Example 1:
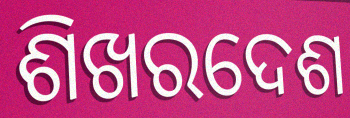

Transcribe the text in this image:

ଶିଖରଦେଶ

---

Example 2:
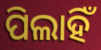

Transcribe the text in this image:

ପିଲାହିଁ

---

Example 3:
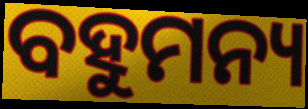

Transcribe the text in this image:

ବହୁମନ୍ୟ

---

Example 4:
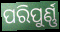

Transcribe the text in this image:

ପରିପୁର୍ଣ୍ଣ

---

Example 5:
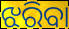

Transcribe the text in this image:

ଝରିବା